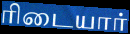
ரிடையார்